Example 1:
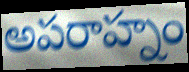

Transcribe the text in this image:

అపరాహ్నం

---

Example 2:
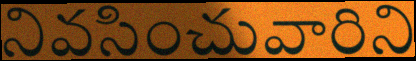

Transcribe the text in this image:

నివసించువారిని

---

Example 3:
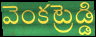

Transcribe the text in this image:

వెంకట్రెడ్డి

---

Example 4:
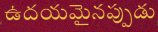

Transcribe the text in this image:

ఉదయమైనప్పుడు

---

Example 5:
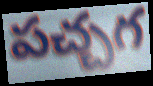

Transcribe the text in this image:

పచ్చగ